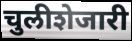
चुलीशेजारी